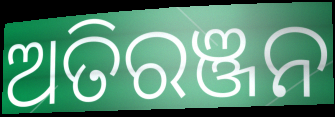
ଅତିରଞ୍ଜନ